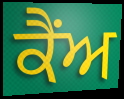
ਕੈਂਅ